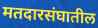
मतदारसंघातील